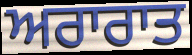
ਅਰਾਰਾਤ